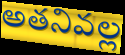
అతనివల్ల